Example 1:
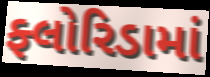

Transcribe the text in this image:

ફ્લોરિડામાં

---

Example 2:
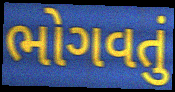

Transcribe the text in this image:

ભોગવતું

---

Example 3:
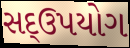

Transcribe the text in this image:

સદ્ઉપયોગ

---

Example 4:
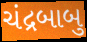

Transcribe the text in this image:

ચંદ્રબાબુ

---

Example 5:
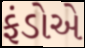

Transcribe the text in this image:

ફંડોએ